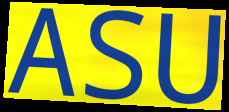
ASU